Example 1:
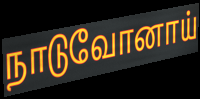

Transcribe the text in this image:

நாடுவோனாய்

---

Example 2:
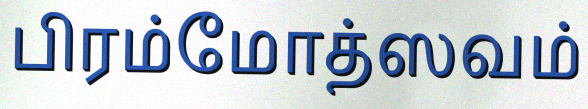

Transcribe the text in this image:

பிரம்மோத்ஸவம்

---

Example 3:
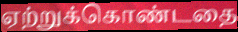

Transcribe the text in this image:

ஏற்றுக்கொண்டதை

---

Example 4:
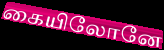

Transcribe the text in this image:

கையிலோனே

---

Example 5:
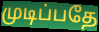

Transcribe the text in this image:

முடிப்பதே